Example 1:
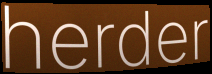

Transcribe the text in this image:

herder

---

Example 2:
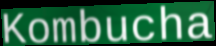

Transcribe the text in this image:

Kombucha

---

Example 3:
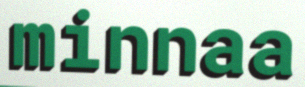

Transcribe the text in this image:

minnaa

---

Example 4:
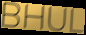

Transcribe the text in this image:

BHUL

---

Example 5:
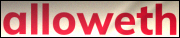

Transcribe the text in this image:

alloweth